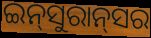
ଇନ୍‍ସୁରାନ୍‍ସର